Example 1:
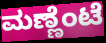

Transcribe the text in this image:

ಮಣ್ಣೆಂಟೆ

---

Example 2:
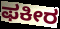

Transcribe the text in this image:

ಫಕೀರ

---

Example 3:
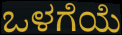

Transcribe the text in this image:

ಒಳಗೆಯೆ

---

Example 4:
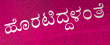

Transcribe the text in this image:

ಹೊರಟಿದ್ದಳಂತೆ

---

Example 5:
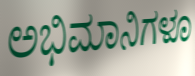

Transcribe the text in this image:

ಅಭಿಮಾನಿಗಳೂ